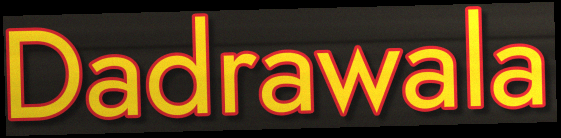
Dadrawala